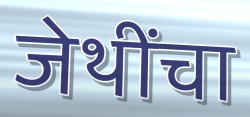
जेथींचा